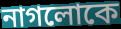
নাগলোকে